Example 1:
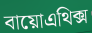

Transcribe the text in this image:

বায়োএথিক্স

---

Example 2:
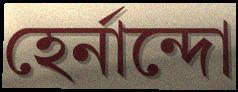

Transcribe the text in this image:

হের্নান্দো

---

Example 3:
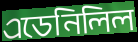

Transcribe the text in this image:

এডেনিলিল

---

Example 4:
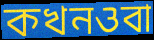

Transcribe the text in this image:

কখনওবা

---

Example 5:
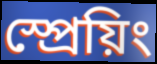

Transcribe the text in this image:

স্প্রেয়িং